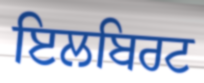
ਇਲਬਿਰਟ